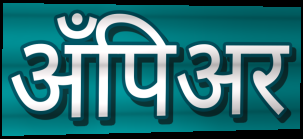
अँपिअर